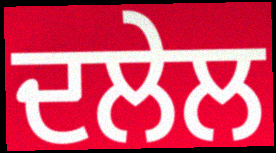
ਦਲੇਲ